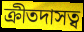
ক্রীতদাসত্ব